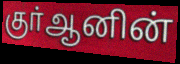
குர்ஆனின்